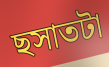
ছসাতটা